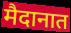
मैदानात